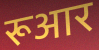
रूआर